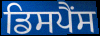
ਡਿਸਪੈਂਸ